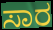
ಸಾರ